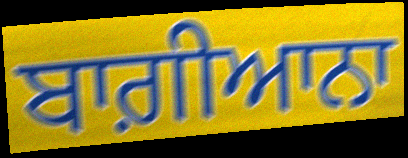
ਬਾਗ਼ੀਆਨਾ